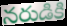
నరుడికి